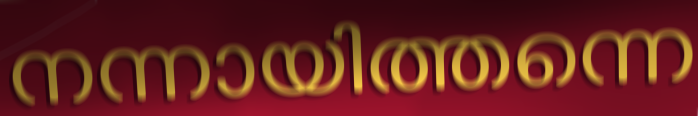
നന്നായിത്തന്നെ